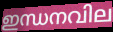
ഇന്ധനവില